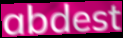
abdest